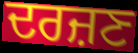
ਦਰਜ਼ਣ